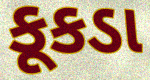
કૂકડા